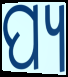
ପ୍ୟ